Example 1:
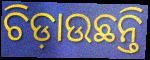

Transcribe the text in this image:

ଚିଡ଼ାଉଛନ୍ତି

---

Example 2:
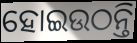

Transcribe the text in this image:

ହୋଇଉଠନ୍ତି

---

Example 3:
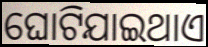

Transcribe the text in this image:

ଘୋଟିଯାଇଥାଏ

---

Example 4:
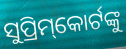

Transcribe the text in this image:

ସୁପ୍ରିମ୍‌କୋର୍ଟଙ୍କୁ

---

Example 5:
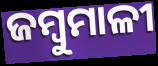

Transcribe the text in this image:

ଜମ୍ବୁମାଳୀ